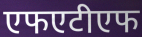
एफएटीएफ